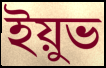
ইয়ুভ